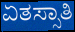
ಏತಸ್ಸಾತಿ